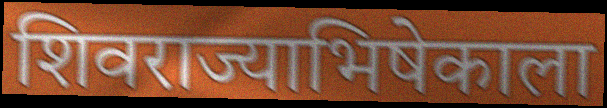
शिवराज्याभिषेकाला